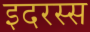
इदरस्स